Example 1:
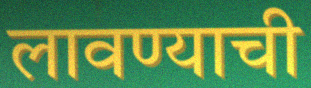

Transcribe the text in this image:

लावण्याची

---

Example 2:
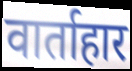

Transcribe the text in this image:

वार्ताहार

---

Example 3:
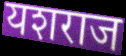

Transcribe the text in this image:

यशराज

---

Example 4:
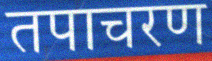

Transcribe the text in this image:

तपाचरण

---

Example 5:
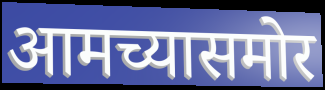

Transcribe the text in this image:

आमच्यासमोर